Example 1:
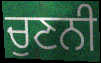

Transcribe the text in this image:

ਚੁਣਨੀ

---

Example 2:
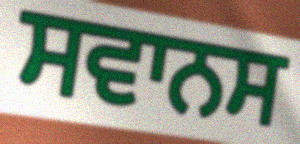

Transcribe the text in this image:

ਸਵਾਨਸ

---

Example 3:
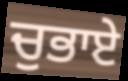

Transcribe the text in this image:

ਚੁਭਾਏ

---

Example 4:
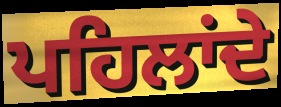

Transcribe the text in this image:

ਪਹਿਲਾਂਦੇ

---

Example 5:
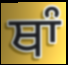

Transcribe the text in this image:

ਥਾੰ